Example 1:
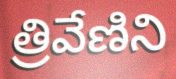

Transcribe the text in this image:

త్రివేణిని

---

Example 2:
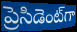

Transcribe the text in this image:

ప్రెసిడెంట్‌గా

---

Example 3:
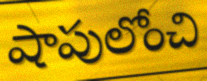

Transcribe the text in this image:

షాపులోంచి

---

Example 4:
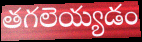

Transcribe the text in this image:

తగలెయ్యడం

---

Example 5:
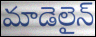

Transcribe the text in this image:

మాడెలైన్